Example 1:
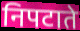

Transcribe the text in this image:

निपटाते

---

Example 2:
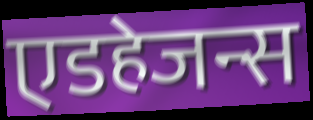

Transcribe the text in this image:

एडहेजन्स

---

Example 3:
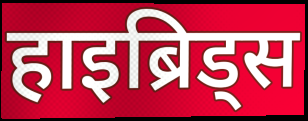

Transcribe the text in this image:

हाइब्रिड्स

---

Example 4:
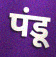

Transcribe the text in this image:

पंडू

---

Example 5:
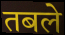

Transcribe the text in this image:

तबले